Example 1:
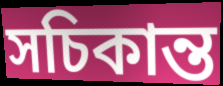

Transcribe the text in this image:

সচিকান্ত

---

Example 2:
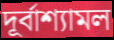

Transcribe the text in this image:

দূর্বাশ্যামল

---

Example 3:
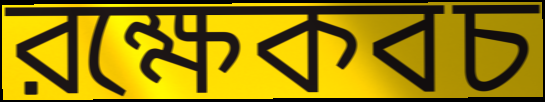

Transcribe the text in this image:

রক্ষেকবচ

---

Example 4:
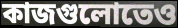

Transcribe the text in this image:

কাজগুলোতেও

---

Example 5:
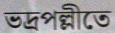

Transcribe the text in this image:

ভদ্রপল্লীতে